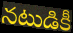
నటుడికీ